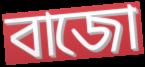
বাজো